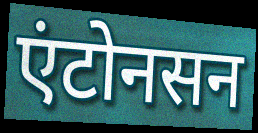
एंटोनसन